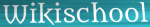
Wikischool